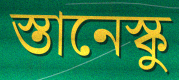
স্তানেস্কু